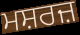
ਮਸ਼ਰਜ਼